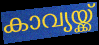
കാവ്യയ്ക്ക്